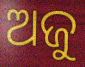
ଅଜୁ